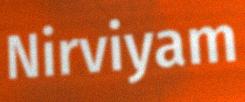
Nirviyam